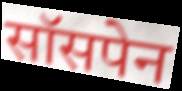
सॉसपेन